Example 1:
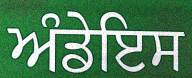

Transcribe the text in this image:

ਅੰਡੇਇਸ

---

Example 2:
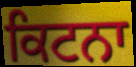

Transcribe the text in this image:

ਕਿਟਨਾ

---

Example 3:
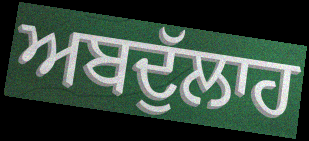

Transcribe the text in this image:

ਅਬਦੁੱਲਾਹ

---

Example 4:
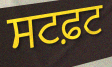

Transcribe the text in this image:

ਸਟਫ਼ਟ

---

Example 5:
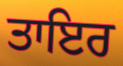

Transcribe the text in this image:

ਤਾਇਰ